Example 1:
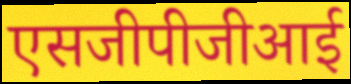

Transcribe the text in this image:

एसजीपीजीआई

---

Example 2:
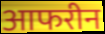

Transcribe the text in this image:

आफरीन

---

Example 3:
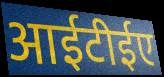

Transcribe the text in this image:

आईटीईए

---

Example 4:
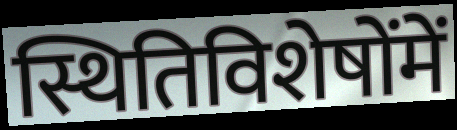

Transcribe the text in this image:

स्थितिविशेषोंमें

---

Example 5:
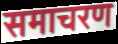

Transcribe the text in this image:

समाचरण